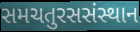
સમચતુરસસંસ્થાન